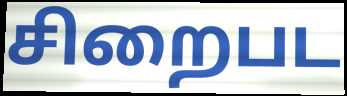
சிறைபட